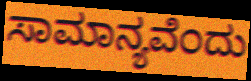
ಸಾಮಾನ್ಯವೆಂದು